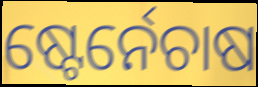
ଷ୍ଟେର୍ନେଚାଷ